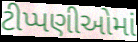
ટીપ્પણીઓમાં